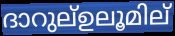
ദാറുല്ഉലൂമില്